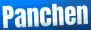
Panchen